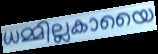
ധമ്മില്ലകായൈ